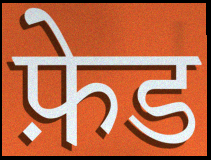
फ़ेड